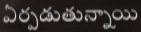
ఏర్పడుతున్నాయి